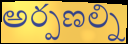
అర్పణల్ని